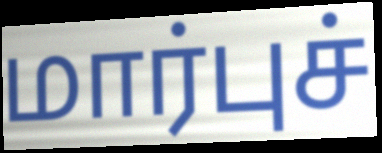
மார்புச்